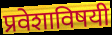
प्रवेशाविषयी